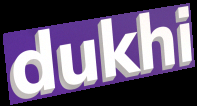
dukhi